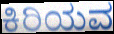
ಕಿರಿಯವ